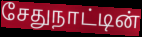
சேதுநாட்டின்